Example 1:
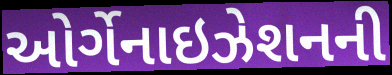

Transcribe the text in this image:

ઓર્ગેનાઇઝેશનની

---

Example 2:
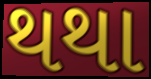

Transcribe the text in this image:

થથા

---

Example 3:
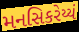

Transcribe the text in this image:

મનસિકરેય્યં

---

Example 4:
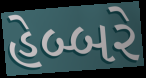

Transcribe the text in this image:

હેબ્બરે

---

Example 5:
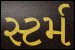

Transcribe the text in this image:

સ્ટર્મ